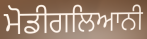
ਮੋਡੀਗਲਿਆਨੀ